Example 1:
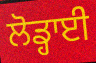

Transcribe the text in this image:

ਲੋਡ੍ਹਾਈ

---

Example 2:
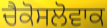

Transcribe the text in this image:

ਚੈਕੋਸਲੋਵਾਕ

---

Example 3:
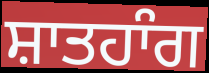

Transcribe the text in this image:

ਸ਼ਾਤਹਾੰਗ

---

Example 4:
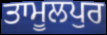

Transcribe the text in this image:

ਤਾਮੂਲਪੁਰ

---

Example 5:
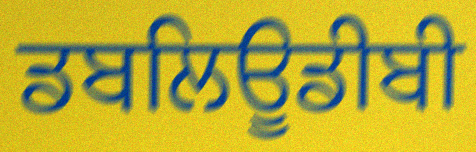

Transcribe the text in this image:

ਡਬਲਿਊਡੀਬੀ